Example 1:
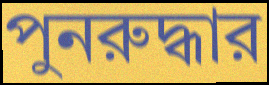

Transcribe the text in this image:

পুনরুদ্ধার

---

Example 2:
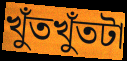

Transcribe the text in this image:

খুঁতখুঁতটা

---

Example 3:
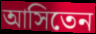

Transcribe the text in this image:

আসিতেন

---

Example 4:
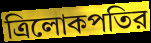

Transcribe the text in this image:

ত্রিলোকপতির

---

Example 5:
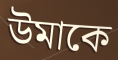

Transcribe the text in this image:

উমাকে